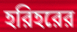
হরিহরের